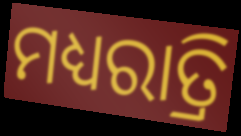
ମଧ୍ୟରାତ୍ରି